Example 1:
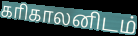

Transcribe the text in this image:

கரிகாலனிடம்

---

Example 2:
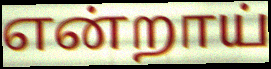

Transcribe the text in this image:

என்றாய்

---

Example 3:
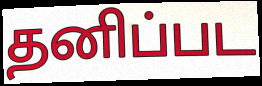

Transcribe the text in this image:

தனிப்பட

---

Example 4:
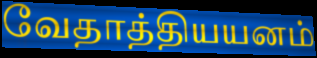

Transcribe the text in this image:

வேதாத்தியயனம்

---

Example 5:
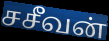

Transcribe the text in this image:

சசீவன்